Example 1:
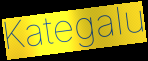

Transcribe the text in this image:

Kategalu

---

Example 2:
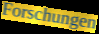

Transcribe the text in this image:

Forschungen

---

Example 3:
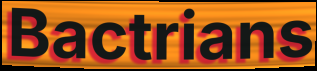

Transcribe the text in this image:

Bactrians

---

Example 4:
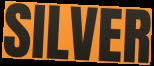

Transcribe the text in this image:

SILVER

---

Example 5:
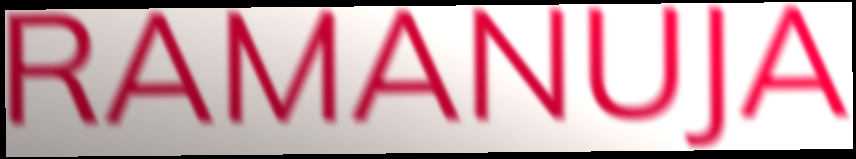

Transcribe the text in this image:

RAMANUJA